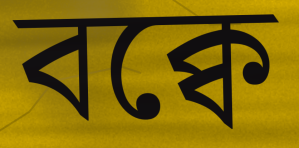
বক্বে